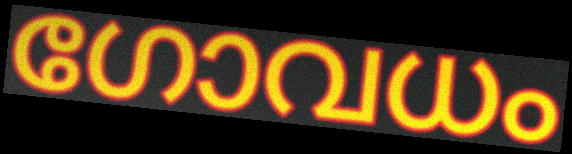
ഗോവധം